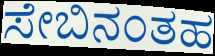
ಸೇಬಿನಂತಹ